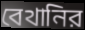
বেথানির